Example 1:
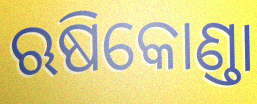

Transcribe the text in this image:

ଋଷିକୋଣ୍ଡା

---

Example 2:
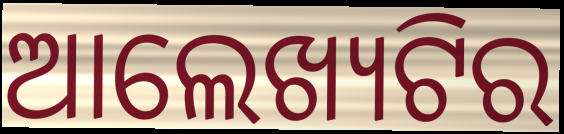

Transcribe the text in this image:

ଆଲେଖ୍ୟଟିର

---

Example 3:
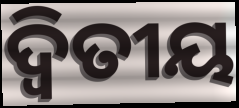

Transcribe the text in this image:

ଦ୍ୱିତୀୟ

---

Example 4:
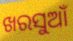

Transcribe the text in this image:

ଖରସୁଆଁ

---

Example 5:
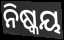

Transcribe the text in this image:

ନିଷ୍କୟ